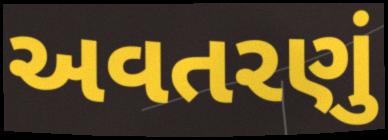
અવતરણું